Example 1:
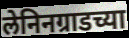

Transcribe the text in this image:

लेनिनग्राडच्या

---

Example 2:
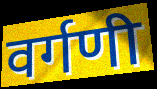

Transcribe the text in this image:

वर्गणी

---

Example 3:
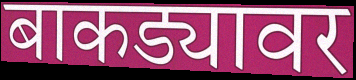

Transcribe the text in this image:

बाकड्यावर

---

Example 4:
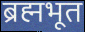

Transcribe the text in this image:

ब्रह्मभूत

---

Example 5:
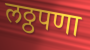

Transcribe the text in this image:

लठ्ठपणा